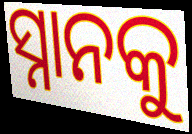
ସ୍ନାନକୁ